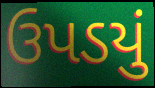
ઉપડયું